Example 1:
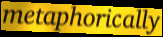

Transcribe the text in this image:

metaphorically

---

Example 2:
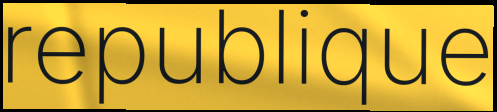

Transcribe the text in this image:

republique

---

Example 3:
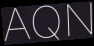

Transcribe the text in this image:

AQN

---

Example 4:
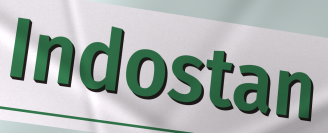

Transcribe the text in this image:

Indostan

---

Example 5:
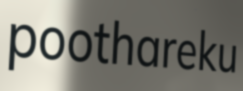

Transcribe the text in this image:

poothareku